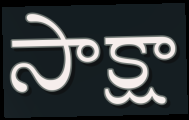
సాక్షా